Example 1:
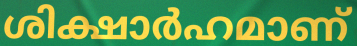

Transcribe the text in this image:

ശിക്ഷാർഹമാണ്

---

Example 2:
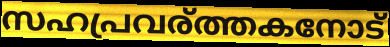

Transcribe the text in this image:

സഹപ്രവര്ത്തകനോട്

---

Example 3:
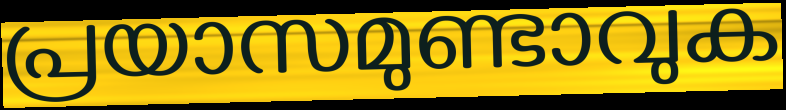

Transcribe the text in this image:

പ്രയാസമുണ്ടാവുക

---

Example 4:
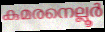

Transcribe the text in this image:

കുമരനെല്ലൂർ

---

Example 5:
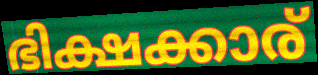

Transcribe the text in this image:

ഭിക്ഷക്കാര്